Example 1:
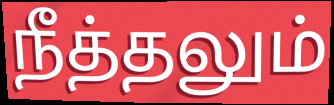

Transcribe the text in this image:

நீத்தலும்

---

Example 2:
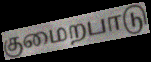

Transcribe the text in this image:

குமைறபாடு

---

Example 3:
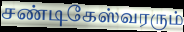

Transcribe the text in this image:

சண்டிகேஸ்வரரும்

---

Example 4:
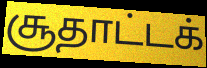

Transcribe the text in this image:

சூதாட்டக்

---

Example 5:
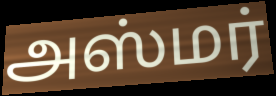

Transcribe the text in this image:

அஸ்மர்